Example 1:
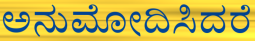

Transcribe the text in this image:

ಅನುಮೋದಿಸಿದರೆ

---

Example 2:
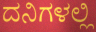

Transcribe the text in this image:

ದನಿಗಳಲ್ಲಿ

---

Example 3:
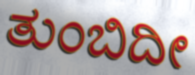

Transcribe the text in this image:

ತುಂಬಿದೀ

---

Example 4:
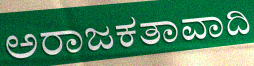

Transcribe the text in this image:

ಅರಾಜಕತಾವಾದಿ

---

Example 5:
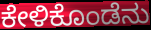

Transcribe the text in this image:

ಕೇಳಿಕೊಂಡೆನು